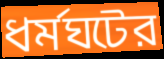
ধর্মঘটের